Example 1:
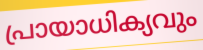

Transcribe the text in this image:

പ്രായാധിക്യവും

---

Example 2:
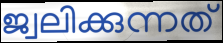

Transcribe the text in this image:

ജ്വലിക്കുന്നത്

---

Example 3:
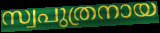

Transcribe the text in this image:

സ്വപുത്രനായ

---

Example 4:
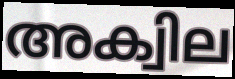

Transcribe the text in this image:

അക്വില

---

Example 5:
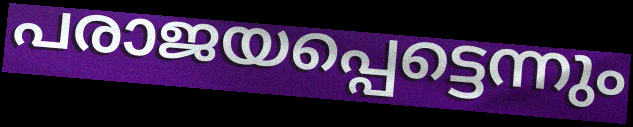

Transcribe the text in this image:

പരാജയപ്പെട്ടെന്നും